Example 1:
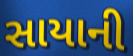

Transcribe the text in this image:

સાયાની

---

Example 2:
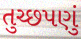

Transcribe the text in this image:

તુચ્છપણું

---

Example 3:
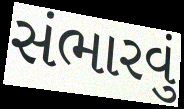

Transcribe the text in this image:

સંભારવું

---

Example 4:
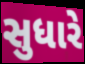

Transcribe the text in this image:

સુધારે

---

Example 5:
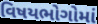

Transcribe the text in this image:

વિષયભોગોમાં